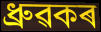
ধ্ৰুৱকৰ